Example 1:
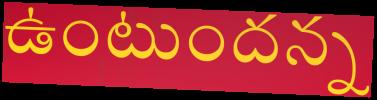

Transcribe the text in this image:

ఉంటుందన్న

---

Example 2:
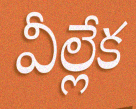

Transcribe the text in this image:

వీల్లేక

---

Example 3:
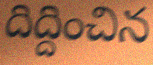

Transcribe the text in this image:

దిద్దించిన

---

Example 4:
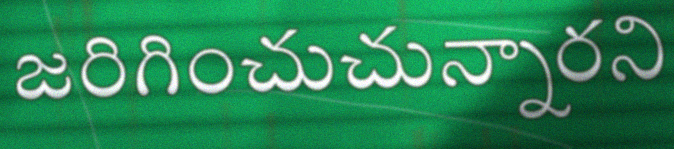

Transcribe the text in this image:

జరిగించుచున్నారని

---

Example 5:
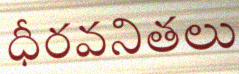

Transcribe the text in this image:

ధీరవనితలు